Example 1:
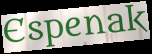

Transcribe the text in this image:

Espenak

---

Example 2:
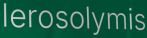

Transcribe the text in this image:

Ierosolymis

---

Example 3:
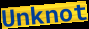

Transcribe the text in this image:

Unknot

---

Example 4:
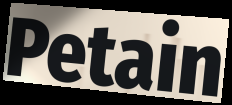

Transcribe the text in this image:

Petain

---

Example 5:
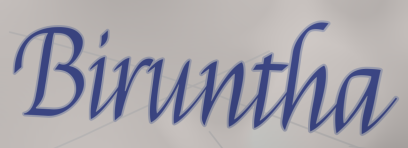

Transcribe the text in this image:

Biruntha